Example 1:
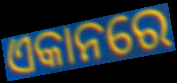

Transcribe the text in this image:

ଏକାନରେ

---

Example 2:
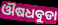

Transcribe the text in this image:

ଔଷଧବୁଡା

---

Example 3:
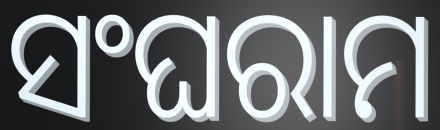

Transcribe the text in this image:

ସଂଘରାମ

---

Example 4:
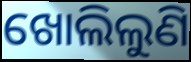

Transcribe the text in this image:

ଖୋଲିଲୁଣି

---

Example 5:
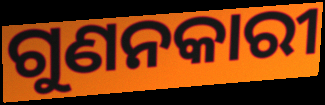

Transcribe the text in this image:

ଗୁଣନକାରୀ